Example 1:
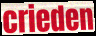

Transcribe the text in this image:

crieden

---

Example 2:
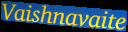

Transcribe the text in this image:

Vaishnavaite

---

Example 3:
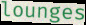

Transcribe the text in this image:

lounges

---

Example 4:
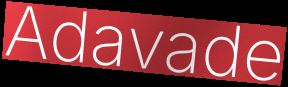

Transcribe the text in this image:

Adavade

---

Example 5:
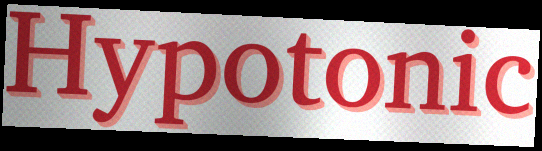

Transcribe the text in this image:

Hypotonic